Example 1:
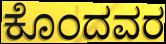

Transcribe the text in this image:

ಕೊಂದವರ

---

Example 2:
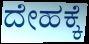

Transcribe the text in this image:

ದೇಹಕ್ಕೆ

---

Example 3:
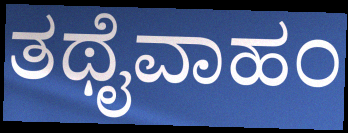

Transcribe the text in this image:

ತಥೈವಾಹಂ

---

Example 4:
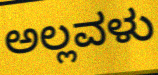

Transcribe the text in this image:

ಅಲ್ಲವಳು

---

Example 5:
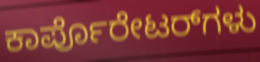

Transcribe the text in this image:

ಕಾರ್ಪೊರೇಟರ್‌ಗಳು